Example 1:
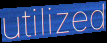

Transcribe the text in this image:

utilized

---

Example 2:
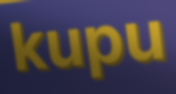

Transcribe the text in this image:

kupu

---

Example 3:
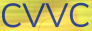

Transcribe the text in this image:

CVVC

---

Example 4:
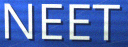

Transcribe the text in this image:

NEET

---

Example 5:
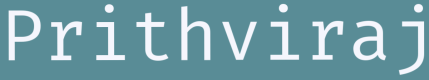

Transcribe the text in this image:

Prithviraj